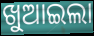
ଖୁଆଇଲା